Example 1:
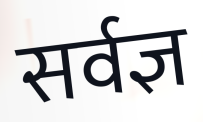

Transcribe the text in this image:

सर्वज्ञ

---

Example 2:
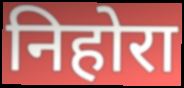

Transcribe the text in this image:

निहोरा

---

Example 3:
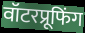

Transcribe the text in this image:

वॉटरप्रूफिंग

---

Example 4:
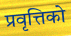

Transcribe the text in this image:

प्रवृत्तिको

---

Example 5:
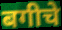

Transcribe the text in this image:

बगीचे